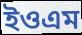
ইওএম